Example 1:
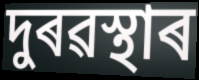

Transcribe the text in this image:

দুৰৱস্থাৰ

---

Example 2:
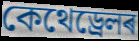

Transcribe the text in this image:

কেথেড্ৰেলৰ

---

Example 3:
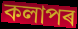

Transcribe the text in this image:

কলাপৰ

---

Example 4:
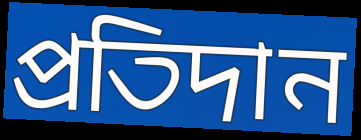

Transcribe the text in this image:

প্ৰতিদান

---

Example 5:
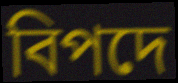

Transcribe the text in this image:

বিপদে